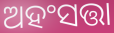
ଅହଂସତ୍ତା